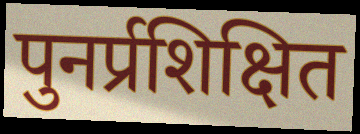
पुनर्प्रशिक्षित